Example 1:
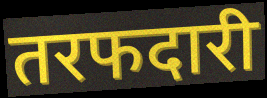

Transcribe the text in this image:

तरफदारी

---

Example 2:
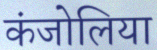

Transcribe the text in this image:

कंजोलिया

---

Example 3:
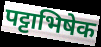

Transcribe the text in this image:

पट्टाभिषेक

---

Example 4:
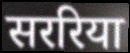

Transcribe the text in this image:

सररिया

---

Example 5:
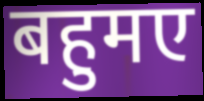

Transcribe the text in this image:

बहुमए